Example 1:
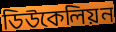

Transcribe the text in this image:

ডিউকেলিয়ন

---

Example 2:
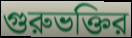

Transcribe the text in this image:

গুরুভক্তির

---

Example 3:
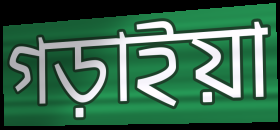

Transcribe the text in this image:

গড়াইয়া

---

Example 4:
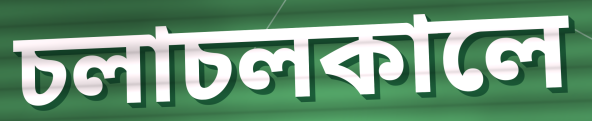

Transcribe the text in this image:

চলাচলকালে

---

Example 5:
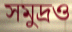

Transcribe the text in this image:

সমুদ্রও